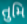
તુમિ